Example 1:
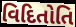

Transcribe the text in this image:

વિદિતોતિ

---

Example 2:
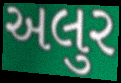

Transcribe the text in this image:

અલુર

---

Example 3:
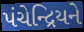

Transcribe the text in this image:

પંચેન્દ્રિયને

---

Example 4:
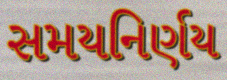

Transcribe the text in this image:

સમયનિર્ણય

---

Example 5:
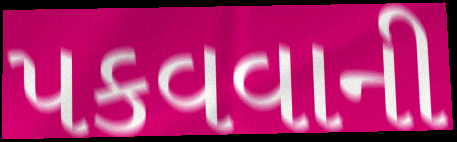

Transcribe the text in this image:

પકવવાની